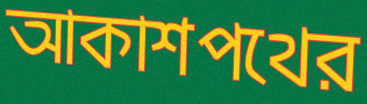
আকাশপথের